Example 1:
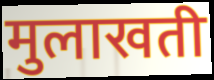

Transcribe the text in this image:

मुलाखती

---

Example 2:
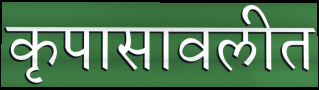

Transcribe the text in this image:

कृपासावलीत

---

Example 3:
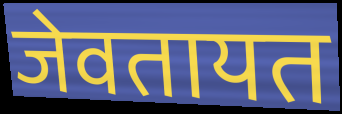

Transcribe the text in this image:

जेवतायत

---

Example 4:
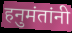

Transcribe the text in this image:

हनुमंतांनी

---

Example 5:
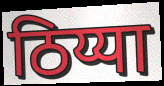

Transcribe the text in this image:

ठिय्या